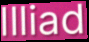
Illiad